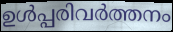
ഉൾപ്പരിവർത്തനം